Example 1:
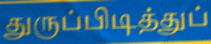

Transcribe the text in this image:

துருப்பிடித்துப்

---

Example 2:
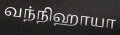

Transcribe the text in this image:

வந்நிஹாயா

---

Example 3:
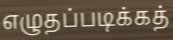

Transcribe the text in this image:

எழுதப்படிக்கத்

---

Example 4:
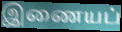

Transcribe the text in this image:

இணையப்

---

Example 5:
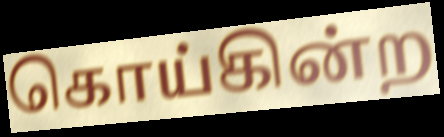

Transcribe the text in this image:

கொய்கின்ற